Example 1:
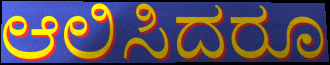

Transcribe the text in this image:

ಆಲಿಸಿದರೂ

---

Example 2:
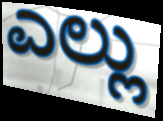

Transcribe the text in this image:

ಎಲ್ಲು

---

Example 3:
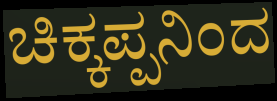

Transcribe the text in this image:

ಚಿಕ್ಕಪ್ಪನಿಂದ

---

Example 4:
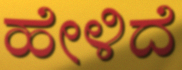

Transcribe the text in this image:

ಹೇಳಿದೆ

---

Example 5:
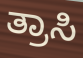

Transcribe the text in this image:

ತ್ರಾಸಿ